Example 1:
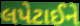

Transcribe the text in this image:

લપેટાઈને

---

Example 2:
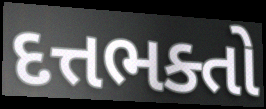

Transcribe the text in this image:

દત્તભક્તો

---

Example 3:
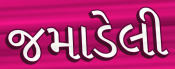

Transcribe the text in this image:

જમાડેલી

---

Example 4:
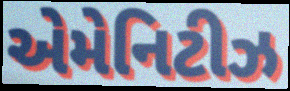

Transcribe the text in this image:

એમેનિટીઝ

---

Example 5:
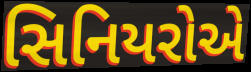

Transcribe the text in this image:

સિનિયરોએ